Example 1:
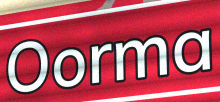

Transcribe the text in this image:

Oorma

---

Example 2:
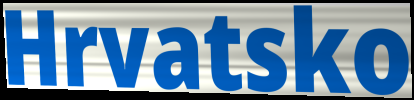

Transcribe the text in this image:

Hrvatsko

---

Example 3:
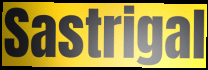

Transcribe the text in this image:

Sastrigal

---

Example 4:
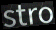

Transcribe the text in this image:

stro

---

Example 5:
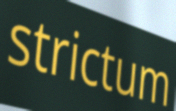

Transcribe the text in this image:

strictum